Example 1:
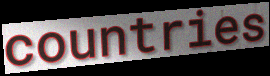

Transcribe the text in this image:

countries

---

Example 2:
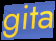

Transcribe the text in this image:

gita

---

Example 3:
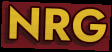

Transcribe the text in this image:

NRG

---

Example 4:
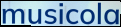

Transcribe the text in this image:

musicola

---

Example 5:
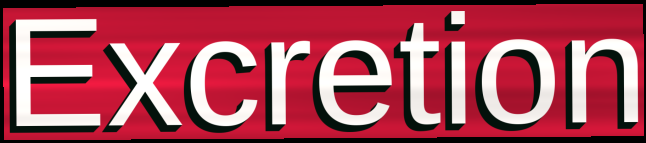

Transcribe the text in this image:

Excretion